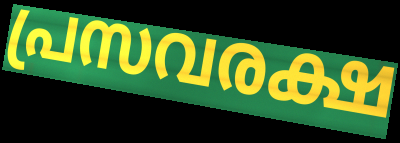
പ്രസവരക്ഷ